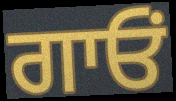
ਗਾਓਂ